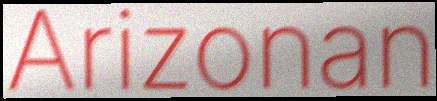
Arizonan